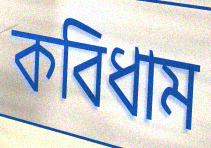
কবিধাম